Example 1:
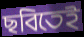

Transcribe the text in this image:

ছবিতেই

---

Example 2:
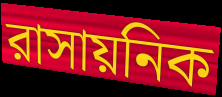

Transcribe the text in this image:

রাসায়নিক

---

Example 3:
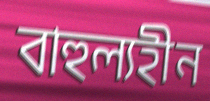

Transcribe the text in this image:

বাহুল্যহীন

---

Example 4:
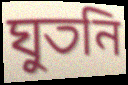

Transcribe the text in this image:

ঘুতনি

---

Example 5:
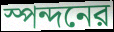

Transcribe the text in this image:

স্পন্দনের